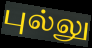
புல்லு